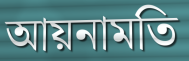
আয়নামতি